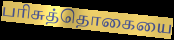
பரிசுத்தொகையை